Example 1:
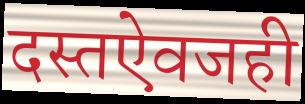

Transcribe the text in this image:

दस्तऐवजही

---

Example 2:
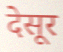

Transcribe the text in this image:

देसूर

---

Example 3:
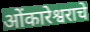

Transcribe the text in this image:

ओंकारेश्वराचे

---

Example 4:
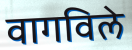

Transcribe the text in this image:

वागविले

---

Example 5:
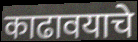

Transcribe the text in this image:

काढावयाचे